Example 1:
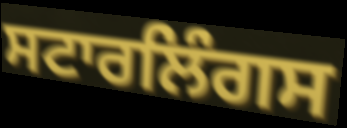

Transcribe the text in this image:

ਸਟਾਰਲਿੰਗਸ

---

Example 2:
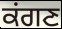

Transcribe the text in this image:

ਕਂਗਣ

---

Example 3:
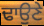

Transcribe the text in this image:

ਢਾਉਣੇ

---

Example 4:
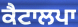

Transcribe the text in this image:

ਕੈਟਾਲਪਾ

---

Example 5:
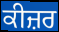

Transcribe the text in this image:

ਕੀਜ਼ਰ